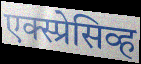
एक्स्प्रेसिव्ह